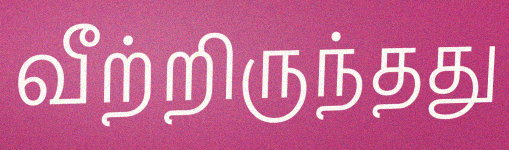
வீற்றிருந்தது